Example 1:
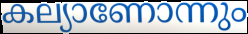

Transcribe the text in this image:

കല്യാണോന്നും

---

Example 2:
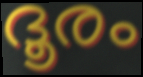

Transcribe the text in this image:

ദൂരം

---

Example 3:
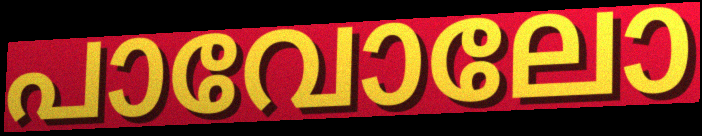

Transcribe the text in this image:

പാവോലോ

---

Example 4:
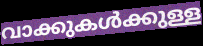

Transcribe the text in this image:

വാക്കുകൾക്കുള്ള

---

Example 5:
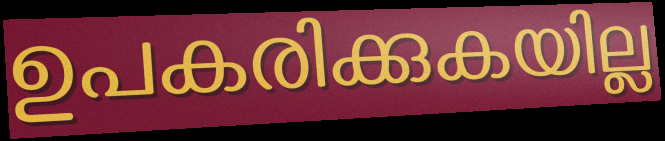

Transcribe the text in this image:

ഉപകരിക്കുകയില്ല